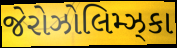
જેરોઝોલિમ્ઝ્કા